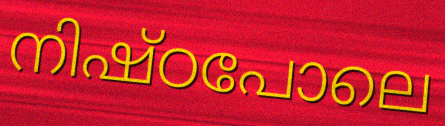
നിഷ്ഠപോലെ